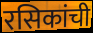
रसिकांची